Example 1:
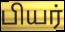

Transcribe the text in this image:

பியர்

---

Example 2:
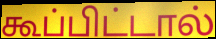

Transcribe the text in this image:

கூப்பிட்டால்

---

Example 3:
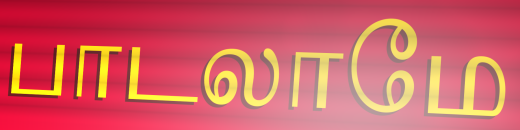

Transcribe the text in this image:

பாடலாமே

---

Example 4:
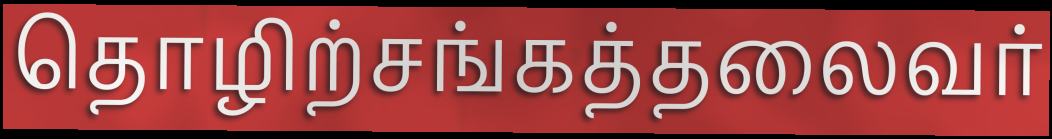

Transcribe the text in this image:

தொழிற்சங்கத்தலைவர்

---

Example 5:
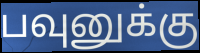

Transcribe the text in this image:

பவுனுக்கு